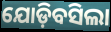
ଯୋଡ଼ିବସିଲା